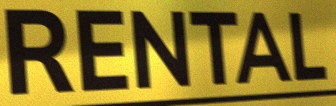
RENTAL